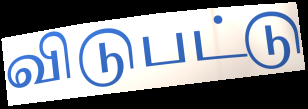
விடுபட்டு